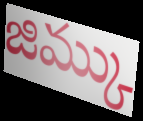
జిమ్కు